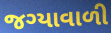
જગ્યાવાળી